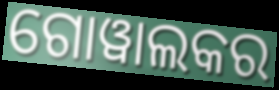
ଗୋୱାଲକର